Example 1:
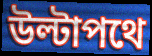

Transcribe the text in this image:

উল্টাপথে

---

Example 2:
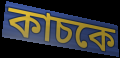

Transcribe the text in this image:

কাচকে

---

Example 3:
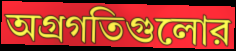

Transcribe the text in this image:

অগ্রগতিগুলোর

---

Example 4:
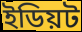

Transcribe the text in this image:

ইডিয়ট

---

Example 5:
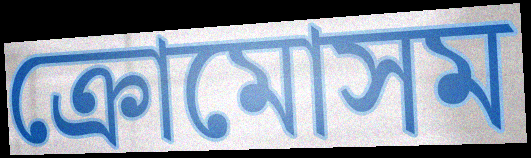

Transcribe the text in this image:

ক্রোমোসম